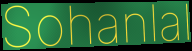
Sohanlal